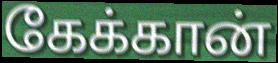
கேக்கான்